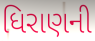
ધિરાણની